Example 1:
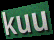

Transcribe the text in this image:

kuu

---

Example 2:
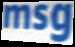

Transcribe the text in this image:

msg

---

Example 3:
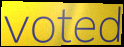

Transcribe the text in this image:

voted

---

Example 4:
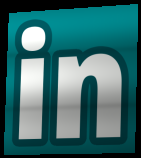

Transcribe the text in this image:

in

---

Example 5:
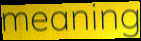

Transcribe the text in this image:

meaning